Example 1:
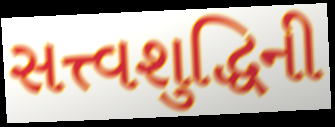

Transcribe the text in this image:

સત્ત્વશુદ્ધિની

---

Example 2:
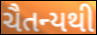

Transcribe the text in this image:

ચૈતન્યથી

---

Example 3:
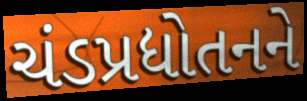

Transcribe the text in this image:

ચંડપ્રદ્યોતનને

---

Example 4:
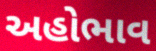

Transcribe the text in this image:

અહોભાવ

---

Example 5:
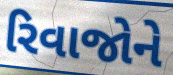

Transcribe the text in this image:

રિવાજોને